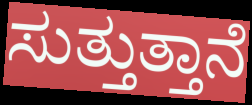
ಸುತ್ತುತ್ತಾನೆ